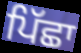
ਪਿੱਛਾ